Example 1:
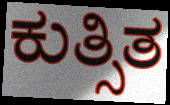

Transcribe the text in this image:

ಕುತ್ಸಿತ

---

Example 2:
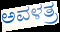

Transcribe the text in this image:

ಅವಳತ್ರ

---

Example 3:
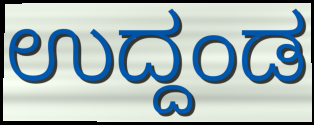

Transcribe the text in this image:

ಉದ್ದಂಡ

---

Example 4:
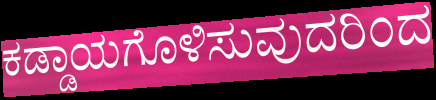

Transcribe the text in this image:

ಕಡ್ಡಾಯಗೊಳಿಸುವುದರಿಂದ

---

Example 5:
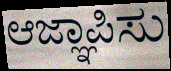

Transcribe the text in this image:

ಆಜ್ಞಾಪಿಸು